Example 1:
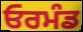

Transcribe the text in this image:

ਓਰਮੰਡ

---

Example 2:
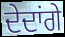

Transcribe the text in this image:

ਦੇਦਾਂਗੇ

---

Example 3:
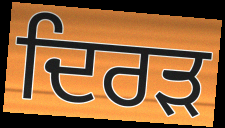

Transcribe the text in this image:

ਦਿਰੜ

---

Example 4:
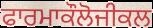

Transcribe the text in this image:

ਫਾਰਮਾਕੌਲੋਜੀਕਲ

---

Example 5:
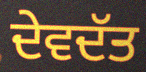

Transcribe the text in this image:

ਦੇਵਦੱਤ